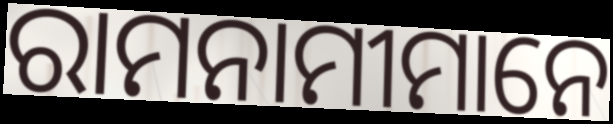
ରାମନାମୀମାନେ